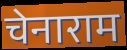
चेनाराम